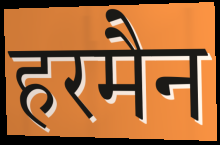
हरमैन